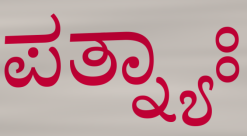
ಪತ್ನ್ಯಾಃ